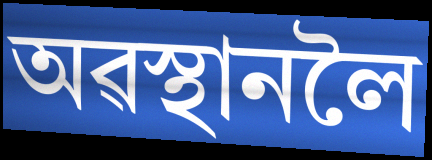
অৱস্থানলৈ